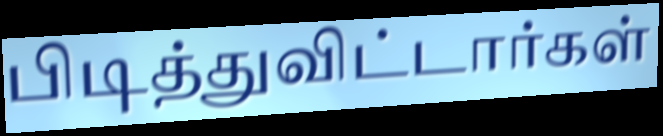
பிடித்துவிட்டார்கள்